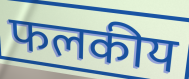
फलकीय